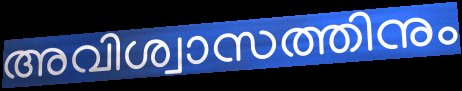
അവിശ്വാസത്തിനും